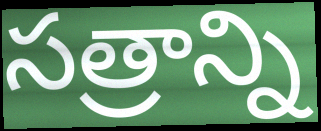
సత్రాన్ని